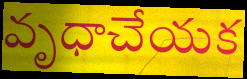
వృధాచేయక